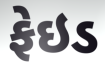
ફેઇડ